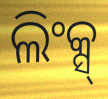
ଲିଂକ୍ସ୍